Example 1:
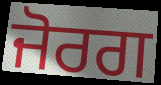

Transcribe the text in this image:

ਜੋਰਗ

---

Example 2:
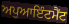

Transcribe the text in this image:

ਅਪੁਆਇੰਟਮੈਂਟ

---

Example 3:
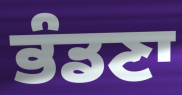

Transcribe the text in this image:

ਭੰਡਣਾ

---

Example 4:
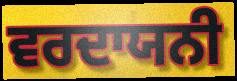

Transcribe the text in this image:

ਵਰਦਾਯਨੀ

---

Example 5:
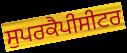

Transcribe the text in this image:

ਸੁਪਰਕੈਪੀਸੀਟਰ